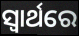
ସ୍ଵାର୍ଥରେ